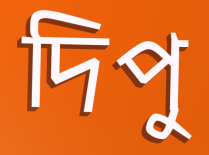
দিপু